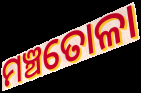
ମଞ୍ଚତୋଳା